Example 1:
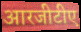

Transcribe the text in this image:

आरजीटीए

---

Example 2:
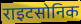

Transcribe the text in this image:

राइटसोनिक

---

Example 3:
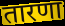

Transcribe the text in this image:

तारणा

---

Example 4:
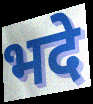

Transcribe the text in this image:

भदे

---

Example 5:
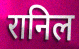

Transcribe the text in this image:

रानिल